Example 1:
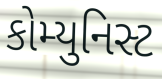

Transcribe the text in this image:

કોમ્યુનિસ્ટ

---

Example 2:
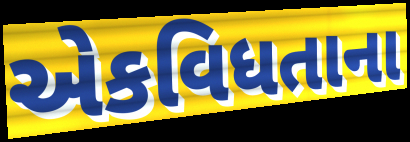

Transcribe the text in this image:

એકવિધતાના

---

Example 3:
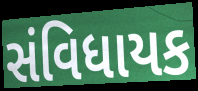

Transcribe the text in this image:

સંવિધાયક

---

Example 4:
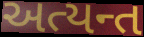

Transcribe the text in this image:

અત્યન્ત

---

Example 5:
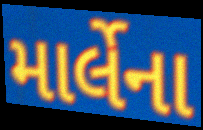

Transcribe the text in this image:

માર્લેના